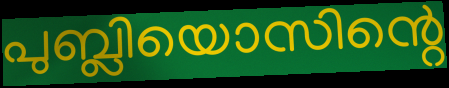
പുബ്ലിയൊസിന്റെ